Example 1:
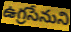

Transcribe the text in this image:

ఉగ్రసేనుని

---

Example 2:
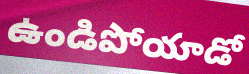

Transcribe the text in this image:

ఉండిపోయాడో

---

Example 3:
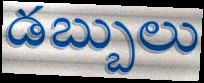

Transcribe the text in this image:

డబ్బులు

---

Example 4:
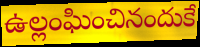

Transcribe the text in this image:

ఉల్లంఘించినందుకే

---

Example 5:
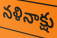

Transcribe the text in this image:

నళినాక్షు